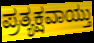
ಪ್ರತ್ಯಕ್ಷವಾಯ್ತು